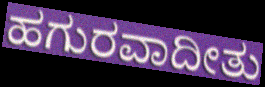
ಹಗುರವಾದೀತು